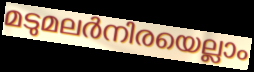
മടുമലർനിരയെല്ലാം